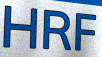
HRF